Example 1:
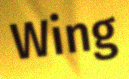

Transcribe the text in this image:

Wing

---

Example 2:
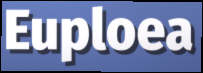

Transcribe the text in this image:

Euploea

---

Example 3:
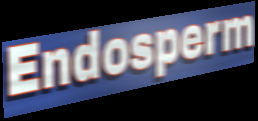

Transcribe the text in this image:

Endosperm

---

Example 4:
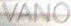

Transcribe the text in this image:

VANO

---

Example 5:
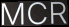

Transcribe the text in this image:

MCR